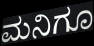
ಮನಿಗೂ